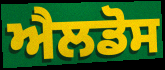
ਐਲਡੋਸ